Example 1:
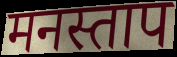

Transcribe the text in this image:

मनस्ताप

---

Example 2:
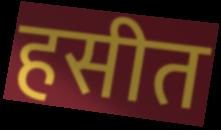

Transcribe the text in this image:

हसीत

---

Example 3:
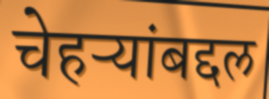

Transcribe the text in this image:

चेहऱ्यांबद्दल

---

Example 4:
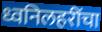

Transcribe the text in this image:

ध्वनिलहरींचा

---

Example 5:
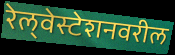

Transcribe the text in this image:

रेल्वेस्टेशनवरील